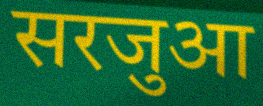
सरजुआ